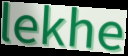
lekhe